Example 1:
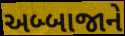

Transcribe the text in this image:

અબ્બાજાને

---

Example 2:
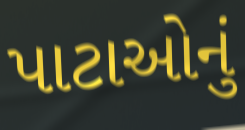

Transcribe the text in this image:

પાટાઓનું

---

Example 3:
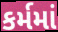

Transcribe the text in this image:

કર્મમાં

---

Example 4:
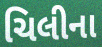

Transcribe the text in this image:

ચિલીના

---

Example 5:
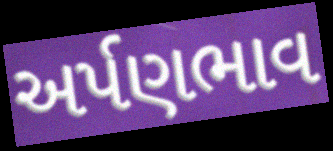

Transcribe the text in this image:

અર્પણભાવ